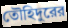
তৌহিদুরের